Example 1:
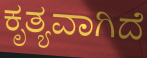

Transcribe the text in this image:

ಕೃತ್ಯವಾಗಿದೆ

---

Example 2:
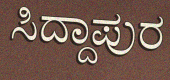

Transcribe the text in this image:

ಸಿದ್ದಾಪುರ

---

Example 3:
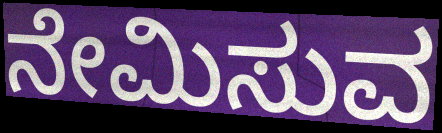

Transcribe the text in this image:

ನೇಮಿಸುವ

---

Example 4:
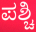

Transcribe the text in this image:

ಪಶ್ಚಿ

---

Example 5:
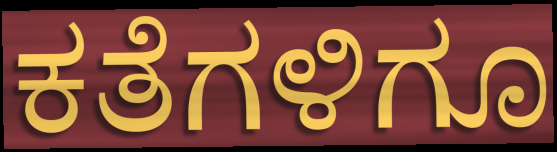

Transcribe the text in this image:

ಕತೆಗಳಿಗೂ